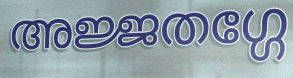
അജ്ജതഗ്ഗേ